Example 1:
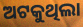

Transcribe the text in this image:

ଅଟକୁଥିଲା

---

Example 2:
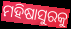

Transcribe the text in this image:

ମହିଷାସୁରକୁ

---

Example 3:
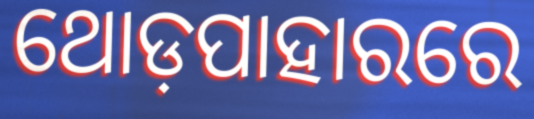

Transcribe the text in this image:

ଥୋଡ଼ପାହାରରେ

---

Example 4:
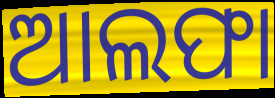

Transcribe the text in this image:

ଆଲଫା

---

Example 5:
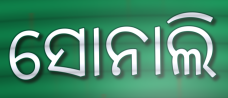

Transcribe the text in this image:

ସୋନାଲି